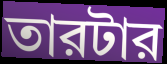
তারটার